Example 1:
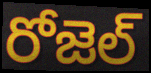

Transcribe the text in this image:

రోజెల్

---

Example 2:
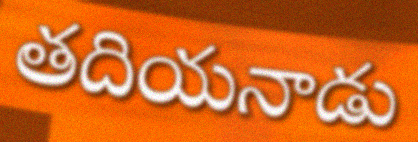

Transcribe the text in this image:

తదియనాడు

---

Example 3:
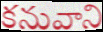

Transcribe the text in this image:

కనువాని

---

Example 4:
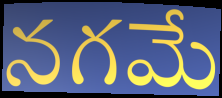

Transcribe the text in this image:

నగమే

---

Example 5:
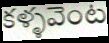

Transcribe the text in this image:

కళ్ళవెంట